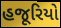
હજૂરિયો